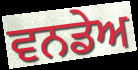
ਵਨਡੇਅ